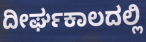
ದೀರ್ಘಕಾಲದಲ್ಲಿ